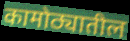
कामोठ्यातील